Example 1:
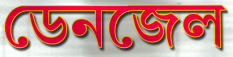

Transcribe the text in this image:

ডেনজেল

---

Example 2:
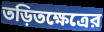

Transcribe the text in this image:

তড়িতক্ষেত্রের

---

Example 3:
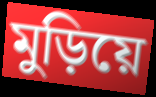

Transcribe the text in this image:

মুড়িয়ে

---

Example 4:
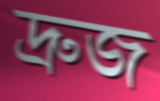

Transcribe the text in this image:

দ্রুজ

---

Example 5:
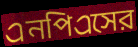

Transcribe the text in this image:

এনপিএসের